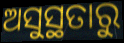
ଅସୁସ୍ଥତାରୁ